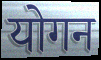
योगन